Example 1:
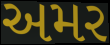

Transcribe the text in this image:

અમર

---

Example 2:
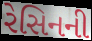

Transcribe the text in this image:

રેસિનની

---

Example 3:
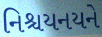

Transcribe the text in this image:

નિશ્ચયનયને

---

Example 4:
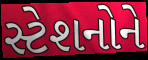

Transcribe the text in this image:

સ્ટેશનોને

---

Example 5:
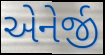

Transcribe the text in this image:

એનેર્જી